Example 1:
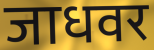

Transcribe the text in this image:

जाधवर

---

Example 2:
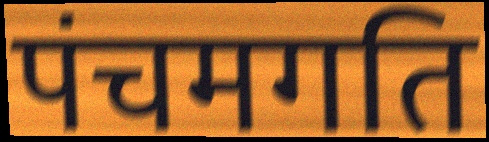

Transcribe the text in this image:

पंचमगति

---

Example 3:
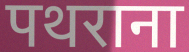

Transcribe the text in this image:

पथराना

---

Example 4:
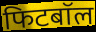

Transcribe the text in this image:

फिटबॉल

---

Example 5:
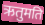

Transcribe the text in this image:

ऋतुमति